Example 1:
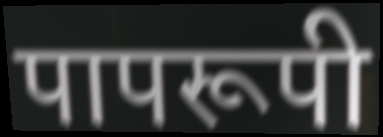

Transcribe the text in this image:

पापरूपी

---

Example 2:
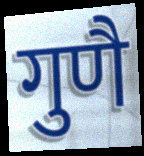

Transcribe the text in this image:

गुणै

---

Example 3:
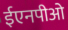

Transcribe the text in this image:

ईएनपीओ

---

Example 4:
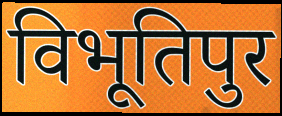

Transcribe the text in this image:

विभूतिपुर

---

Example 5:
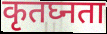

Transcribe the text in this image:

कृतघ्नता